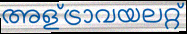
അള്ട്രാവയലറ്റ്